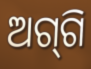
ଅଗ୍‌ଗି